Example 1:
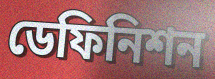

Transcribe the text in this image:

ডেফিনিশন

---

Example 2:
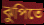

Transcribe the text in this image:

ঝুপিতে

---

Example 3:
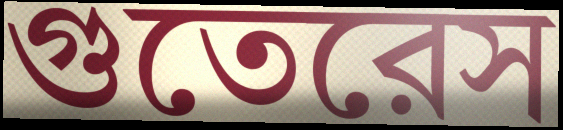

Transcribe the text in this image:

গুতেরেস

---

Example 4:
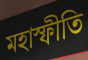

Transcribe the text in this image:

মহাস্ফীতি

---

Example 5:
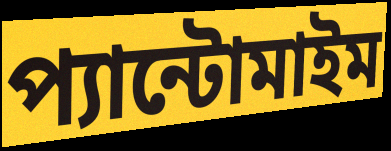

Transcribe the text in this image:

প্যান্টোমাইম